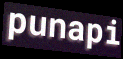
punapi